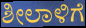
ಶೀಲಾಳಿಗೆ